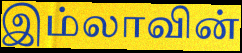
இம்லாவின்